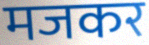
मजकर